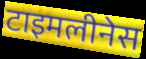
टाइमलीनेस